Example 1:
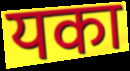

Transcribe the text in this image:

यका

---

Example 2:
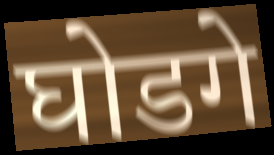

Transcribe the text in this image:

घोडगे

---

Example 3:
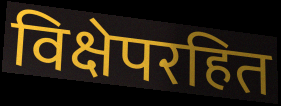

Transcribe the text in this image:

विक्षेपरहित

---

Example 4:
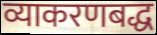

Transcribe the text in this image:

व्याकरणबद्ध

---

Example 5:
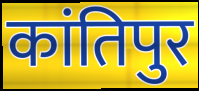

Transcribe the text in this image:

कांतिपुर